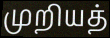
முறியத்